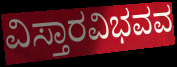
ವಿಸ್ತಾರವಿಭವವ